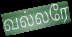
வல்லரே